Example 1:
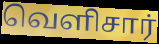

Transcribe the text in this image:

வெளிசார்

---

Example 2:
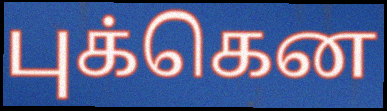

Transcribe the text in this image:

புக்கென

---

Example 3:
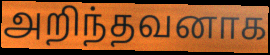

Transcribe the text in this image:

அறிந்தவனாக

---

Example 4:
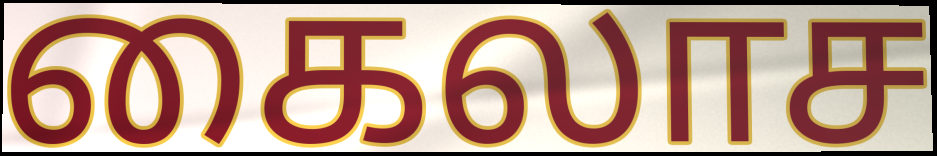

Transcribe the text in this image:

கைலாச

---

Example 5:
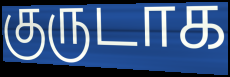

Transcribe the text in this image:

குருடாக